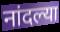
नांदल्या